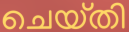
ചെയ്‌തി